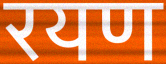
रयण